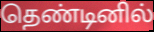
தெண்டினில்